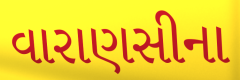
વારાણસીના